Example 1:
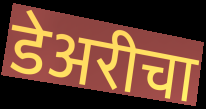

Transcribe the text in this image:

डेअरीचा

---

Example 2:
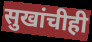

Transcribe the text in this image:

सुखांचीही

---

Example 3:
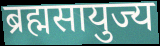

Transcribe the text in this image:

ब्रह्मसायुज्य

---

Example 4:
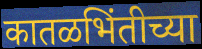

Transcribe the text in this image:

कातळभिंतीच्या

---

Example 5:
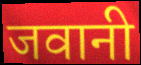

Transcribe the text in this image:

जवानी